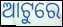
ଆଟୁରେ